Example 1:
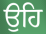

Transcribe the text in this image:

ਉਹਿ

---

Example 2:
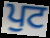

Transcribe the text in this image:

ਪੁਟ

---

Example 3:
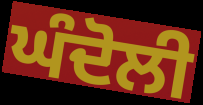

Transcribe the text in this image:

ਘੰਦੋਲੀ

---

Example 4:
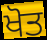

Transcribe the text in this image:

ਖੋਤ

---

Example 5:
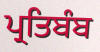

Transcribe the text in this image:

ਪ੍ਰਤਿਬੰਬ